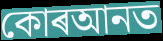
কোৰআনত